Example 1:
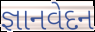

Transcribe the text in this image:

જ્ઞાનવેદન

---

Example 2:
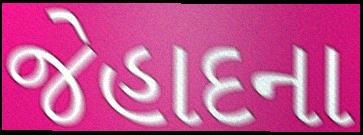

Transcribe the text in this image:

જેહાદના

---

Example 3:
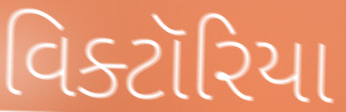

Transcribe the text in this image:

વિક્ટૉરિયા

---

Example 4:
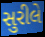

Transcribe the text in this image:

સુરીલે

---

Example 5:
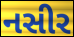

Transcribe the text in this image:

નસીર